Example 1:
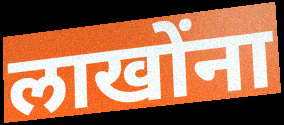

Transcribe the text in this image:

लाखोंना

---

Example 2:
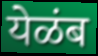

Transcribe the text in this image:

येळंब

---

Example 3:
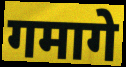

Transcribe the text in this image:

गमागे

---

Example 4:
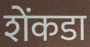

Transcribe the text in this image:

शेंकडा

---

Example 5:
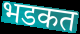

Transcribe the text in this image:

भडकत